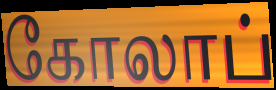
கோலாப்